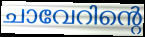
ചാവേറിന്റെ